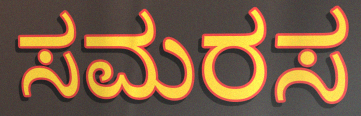
ಸಮರಸ